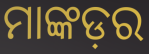
ମାଙ୍କଡ଼ର